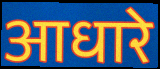
आधारे